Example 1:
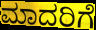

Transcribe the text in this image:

ಮಾದರಿಗೆ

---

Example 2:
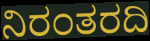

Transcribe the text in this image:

ನಿರಂತರದಿ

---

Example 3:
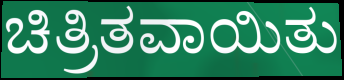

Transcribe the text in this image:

ಚಿತ್ರಿತವಾಯಿತು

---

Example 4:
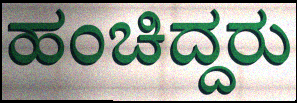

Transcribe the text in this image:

ಹಂಚಿದ್ದರು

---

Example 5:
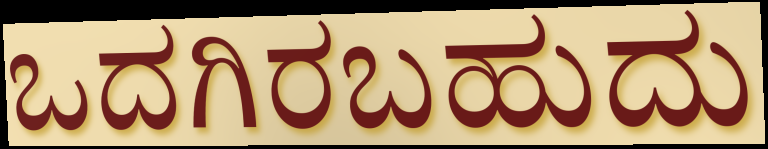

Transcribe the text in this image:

ಒದಗಿರಬಹುದು